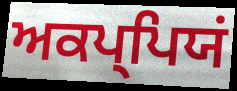
ਅਕਪ੍ਪਿਯਂ